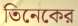
তিনেকের